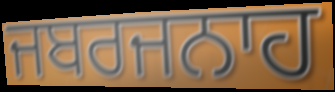
ਜਬਰਜਨਾਹ